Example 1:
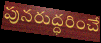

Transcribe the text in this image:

పునరుద్ధరించే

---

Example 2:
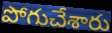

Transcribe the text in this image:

పోగుచేశారు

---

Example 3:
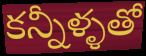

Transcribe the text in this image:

కన్నీళ్ళతో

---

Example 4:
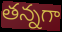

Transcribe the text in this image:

తన్నగా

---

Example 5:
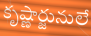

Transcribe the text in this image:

కృష్ణార్జునులే